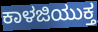
ಕಾಳಜಿಯುಕ್ತ